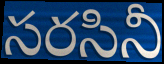
సరసినీ